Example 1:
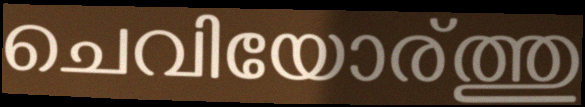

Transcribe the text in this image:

ചെവിയോര്ത്തു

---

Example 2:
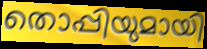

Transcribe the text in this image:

തൊപ്പിയുമായി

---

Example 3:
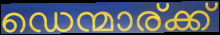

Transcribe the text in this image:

ഡെന്മാര്ക്ക്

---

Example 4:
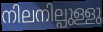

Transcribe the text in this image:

നിലനില്പുള്ളു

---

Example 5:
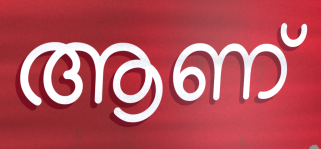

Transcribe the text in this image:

ആണ്